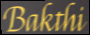
Bakthi